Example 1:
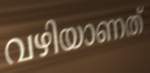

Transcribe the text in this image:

വഴിയാണത്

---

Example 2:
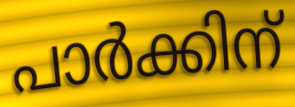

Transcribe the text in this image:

പാർക്കിന്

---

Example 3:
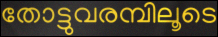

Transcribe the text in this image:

തോട്ടുവരമ്പിലൂടെ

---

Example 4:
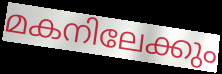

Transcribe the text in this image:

മകനിലേക്കും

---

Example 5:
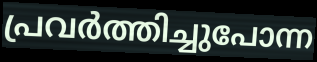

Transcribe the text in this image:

പ്രവർത്തിച്ചുപോന്ന